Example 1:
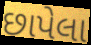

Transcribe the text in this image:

છાપેલા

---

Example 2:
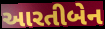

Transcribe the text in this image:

આરતીબેન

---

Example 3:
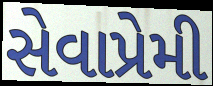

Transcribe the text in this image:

સેવાપ્રેમી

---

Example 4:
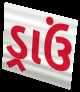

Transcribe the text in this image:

ડ્રાઉં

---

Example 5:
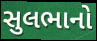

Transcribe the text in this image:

સુલભાનો